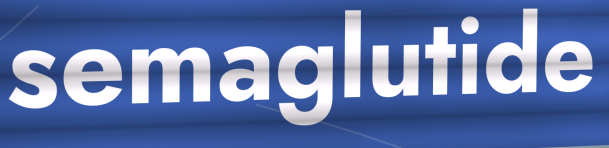
semaglutide